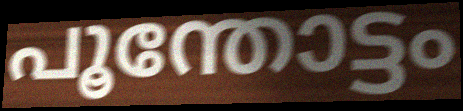
പൂന്തോട്ടം